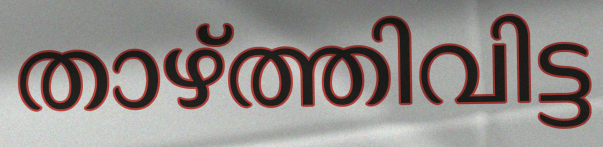
താഴ്ത്തിവിട്ട